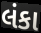
લંકા